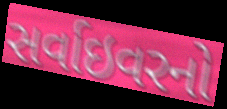
સર્વાઇવરનો